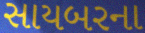
સાયબરના